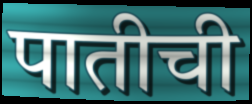
पातीची